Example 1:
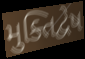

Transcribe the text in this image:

મુક્તિદ્વેષ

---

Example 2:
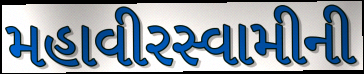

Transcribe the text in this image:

મહાવીરસ્વામીની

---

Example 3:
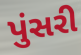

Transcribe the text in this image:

પુંસરી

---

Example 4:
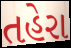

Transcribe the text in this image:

તહેરા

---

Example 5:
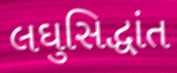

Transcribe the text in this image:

લઘુસિદ્ધાંત